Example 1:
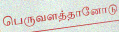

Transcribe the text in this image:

பெருவளத்தானோடு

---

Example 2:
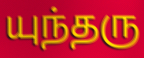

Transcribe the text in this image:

யுந்தரு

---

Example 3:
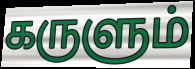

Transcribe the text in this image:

கருளும்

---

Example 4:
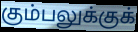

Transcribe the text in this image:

கும்பலுக்குக்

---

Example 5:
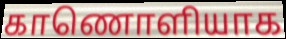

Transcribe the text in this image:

காணொளியாக